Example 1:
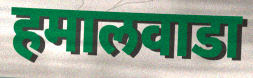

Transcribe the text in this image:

हमालवाडा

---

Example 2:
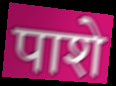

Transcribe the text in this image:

पाशे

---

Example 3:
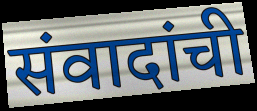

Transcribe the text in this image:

संवादांची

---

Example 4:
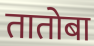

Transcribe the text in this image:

तातोबा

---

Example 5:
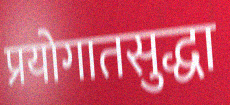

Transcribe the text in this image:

प्रयोगातसुद्धा